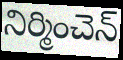
నిర్మించెన్